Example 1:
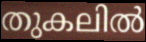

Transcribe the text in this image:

തുകലിൽ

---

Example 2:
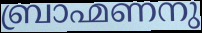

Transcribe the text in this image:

ബ്രാഹ്മണനു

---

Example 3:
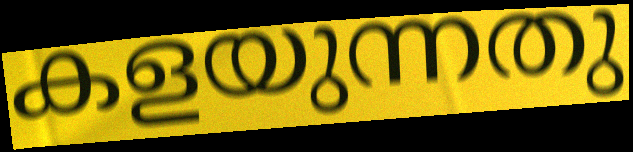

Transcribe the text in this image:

കളയുന്നതു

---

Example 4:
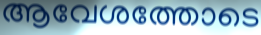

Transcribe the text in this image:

ആവേശത്തോടെ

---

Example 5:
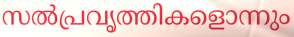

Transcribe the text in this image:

സൽപ്രവൃത്തികളൊന്നും